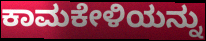
ಕಾಮಕೇಳಿಯನ್ನು